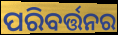
ପରିବର୍ତ୍ତନର